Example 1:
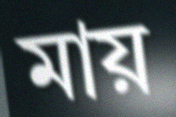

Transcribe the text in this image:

মায়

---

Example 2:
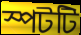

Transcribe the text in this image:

স্পটটি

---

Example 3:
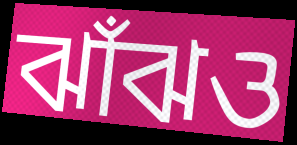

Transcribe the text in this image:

ঝাঁঝও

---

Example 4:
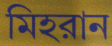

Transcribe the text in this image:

মিহরান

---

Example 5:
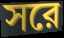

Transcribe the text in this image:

সরে